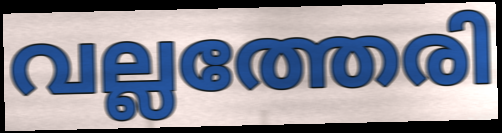
വല്ലത്തേരി